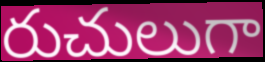
రుచులుగా